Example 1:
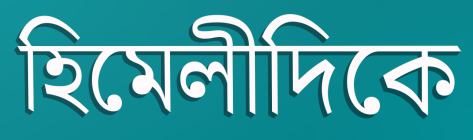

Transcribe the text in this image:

হিমেলীদিকে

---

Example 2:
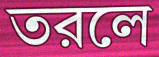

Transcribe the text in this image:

তরলে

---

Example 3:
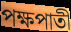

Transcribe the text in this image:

পক্ষপাতী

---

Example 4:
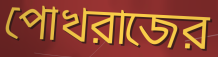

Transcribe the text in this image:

পোখরাজের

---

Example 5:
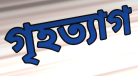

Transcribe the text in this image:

গৃহত্যাগ